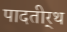
पादतीर्थ